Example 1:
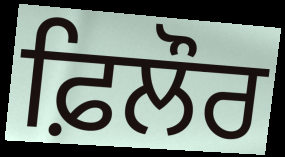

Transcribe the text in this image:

ਫ਼ਿਲੌਰ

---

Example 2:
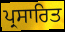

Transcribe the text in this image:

ਪ੍ਰਸਾਰਿਤ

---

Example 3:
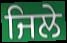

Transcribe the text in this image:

ਜਿਲੇ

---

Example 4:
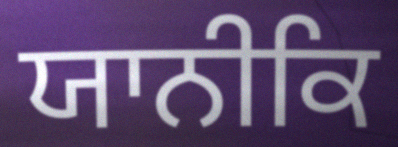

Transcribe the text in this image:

ਯਾਨੀਕਿ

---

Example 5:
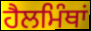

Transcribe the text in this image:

ਹੈਲਮਿੰਥਾਂ